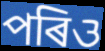
পৰিও